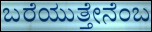
ಬರೆಯುತ್ತೇನೆಂಬ